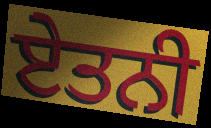
ਏਤਨੀ